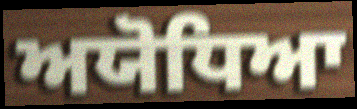
ਅਯੋਧਿਆ